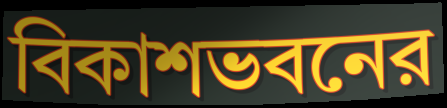
বিকাশভবনের